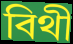
বিথী